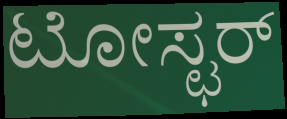
ಟೋಸ್ಟರ್